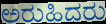
ಅರುಹಿದರು